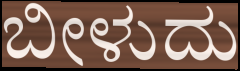
ಬೀಳುದು